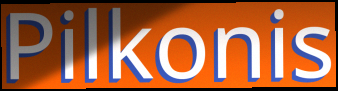
Pilkonis